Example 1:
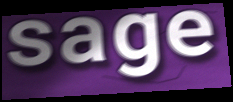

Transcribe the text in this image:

sage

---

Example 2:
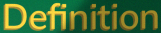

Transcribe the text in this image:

Definition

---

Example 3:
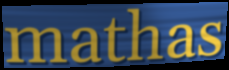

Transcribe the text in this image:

mathas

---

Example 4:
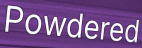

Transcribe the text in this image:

Powdered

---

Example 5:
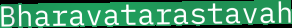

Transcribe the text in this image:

Bharavatarastavah